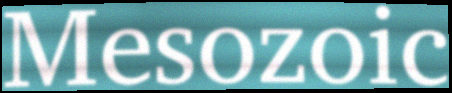
Mesozoic